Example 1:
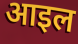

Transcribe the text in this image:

आइल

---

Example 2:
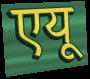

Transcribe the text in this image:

एयू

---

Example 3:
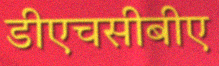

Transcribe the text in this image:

डीएचसीबीए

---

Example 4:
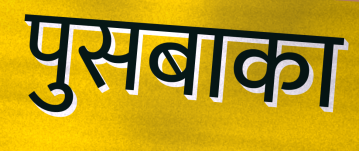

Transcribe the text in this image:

पुसबाका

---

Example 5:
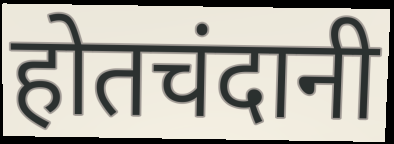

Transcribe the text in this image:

होतचंदानी